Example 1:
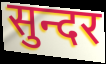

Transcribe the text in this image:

सुन्दर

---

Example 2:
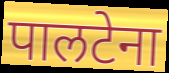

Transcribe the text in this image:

पालटेना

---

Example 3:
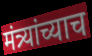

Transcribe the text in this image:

मंत्र्यांच्याच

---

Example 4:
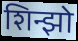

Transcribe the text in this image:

शिन्झो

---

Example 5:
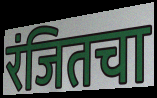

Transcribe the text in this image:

रंजितचा